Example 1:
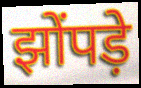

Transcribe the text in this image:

झोंपड़े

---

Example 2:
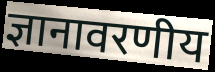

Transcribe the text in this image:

ज्ञानावरणीय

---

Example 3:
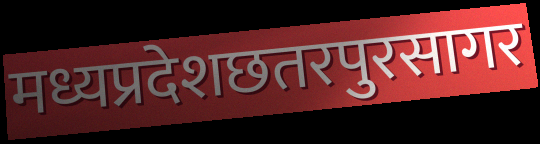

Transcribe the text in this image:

मध्यप्रदेशछतरपुरसागर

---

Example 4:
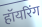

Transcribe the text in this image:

हॉयरिंग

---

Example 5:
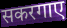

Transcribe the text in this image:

सकरगाए